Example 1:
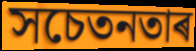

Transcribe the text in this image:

সচেতনতাৰ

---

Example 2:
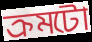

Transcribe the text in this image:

ক্ৰমটো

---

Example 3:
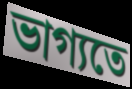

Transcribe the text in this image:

ভাগ্যতে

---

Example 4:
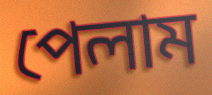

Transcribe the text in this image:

পেলাম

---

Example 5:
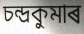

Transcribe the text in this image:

চন্দ্ৰকুমাৰ